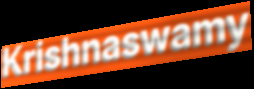
Krishnaswamy